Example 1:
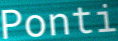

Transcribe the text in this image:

Ponti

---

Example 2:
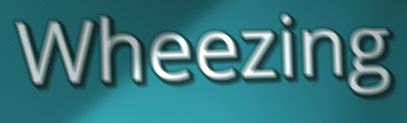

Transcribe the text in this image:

Wheezing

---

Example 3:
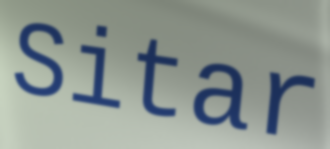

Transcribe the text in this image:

Sitar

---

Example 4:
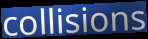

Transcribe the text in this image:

collisions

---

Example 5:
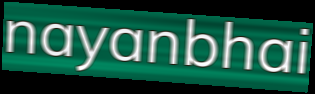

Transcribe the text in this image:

nayanbhai